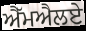
ਐੱਮਐਲਏ